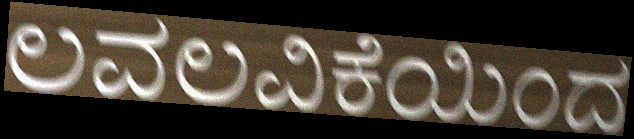
ಲವಲವಿಕೆಯಿಂದ